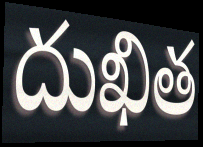
దుఖిత